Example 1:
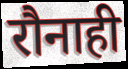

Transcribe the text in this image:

रौनाही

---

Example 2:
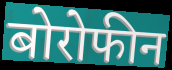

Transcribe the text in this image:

बोरोफीन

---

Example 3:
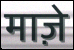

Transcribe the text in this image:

माज़े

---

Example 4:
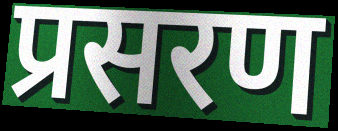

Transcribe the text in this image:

प्रसरण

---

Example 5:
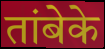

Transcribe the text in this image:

तांबेके